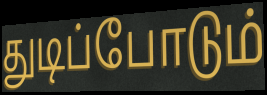
துடிப்போடும்